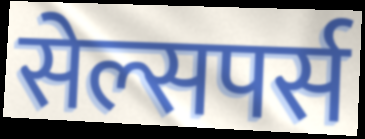
सेल्सपर्स